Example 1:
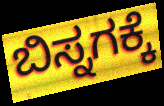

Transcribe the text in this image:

ಬಿಸ್ನಗಕ್ಕೆ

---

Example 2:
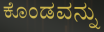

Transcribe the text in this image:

ಕೊಂಡವನ್ನು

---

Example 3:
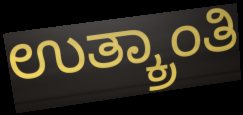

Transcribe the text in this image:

ಉತ್ಕ್ರಾಂತಿ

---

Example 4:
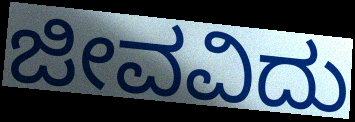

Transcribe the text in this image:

ಜೀವವಿದು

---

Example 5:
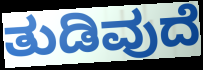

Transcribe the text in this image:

ತುಡಿವುದೆ